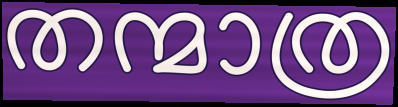
തന്മാത്ര